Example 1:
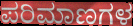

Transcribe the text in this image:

ಪರಿಮಾಣಗಳ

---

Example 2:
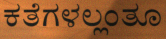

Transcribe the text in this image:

ಕತೆಗಳಲ್ಲಂತೂ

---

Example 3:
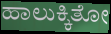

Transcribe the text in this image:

ಹಾಲುಕ್ಕಿತೋ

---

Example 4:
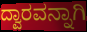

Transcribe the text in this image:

ದ್ವಾರವನ್ನಾಗಿ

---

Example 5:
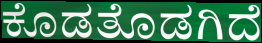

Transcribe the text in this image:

ಕೊಡತೊಡಗಿದೆ